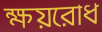
ক্ষয়রোধ